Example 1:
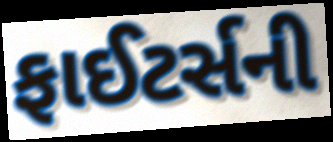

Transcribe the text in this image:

ફાઈટર્સની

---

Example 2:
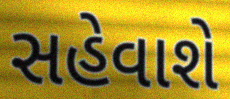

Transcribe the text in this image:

સહેવાશે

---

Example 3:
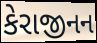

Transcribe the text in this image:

કેરાજીનન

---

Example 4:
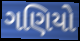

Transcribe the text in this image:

ગણિયો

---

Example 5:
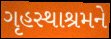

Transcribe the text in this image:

ગૃહસ્થાશ્રમને